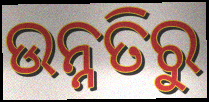
ଉନ୍ନତିରୁ